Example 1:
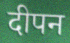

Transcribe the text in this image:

दीपन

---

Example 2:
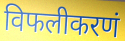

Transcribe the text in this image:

विफलीकरणं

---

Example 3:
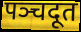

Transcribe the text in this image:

पञ्चदूत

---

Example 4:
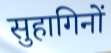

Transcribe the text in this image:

सुहागिनों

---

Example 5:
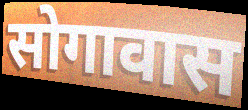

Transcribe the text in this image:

सोगावास